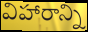
విహారాన్ని